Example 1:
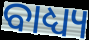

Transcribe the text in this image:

ବାଧ୍ୟ୍ୟ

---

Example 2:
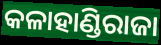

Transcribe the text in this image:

କଳାହାଣ୍ଡିରାଜା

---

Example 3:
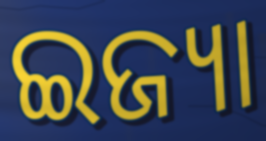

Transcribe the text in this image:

ଇଜ୍ୟା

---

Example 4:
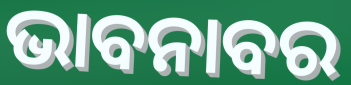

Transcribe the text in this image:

ଭାବନାବର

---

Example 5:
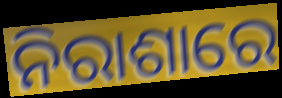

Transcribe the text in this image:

ନିରାଶାରେ